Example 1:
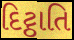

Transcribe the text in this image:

દિટ્ઠાતિ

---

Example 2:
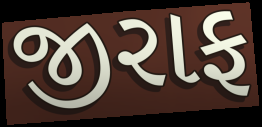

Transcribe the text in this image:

જીરાફ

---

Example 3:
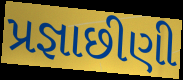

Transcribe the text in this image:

પ્રજ્ઞાછીણી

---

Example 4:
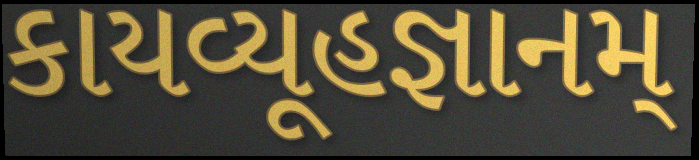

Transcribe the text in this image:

કાયવ્યૂહજ્ઞાનમ્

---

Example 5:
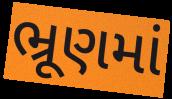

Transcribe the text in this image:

ભ્રૂણમાં